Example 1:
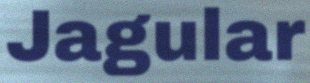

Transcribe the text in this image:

Jagular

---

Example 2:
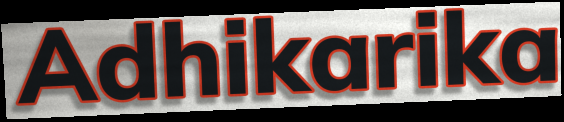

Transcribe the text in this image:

Adhikarika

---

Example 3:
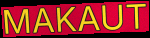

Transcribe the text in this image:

MAKAUT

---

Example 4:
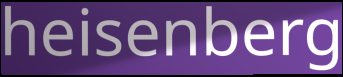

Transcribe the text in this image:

heisenberg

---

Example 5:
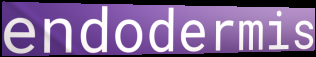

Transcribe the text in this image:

endodermis